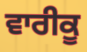
ਵਾਰੀਕੂ